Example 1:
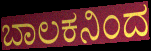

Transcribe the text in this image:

ಬಾಲಕನಿಂದ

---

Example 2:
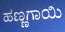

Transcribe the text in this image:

ಹಣ್ಣಗಾಯಿ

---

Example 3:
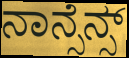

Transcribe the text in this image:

ನಾನ್ಸೆನ್ಸ್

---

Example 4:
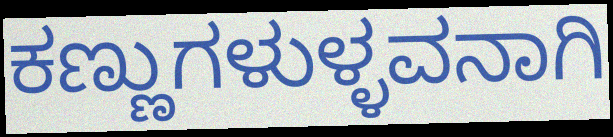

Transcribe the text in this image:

ಕಣ್ಣುಗಳುಳ್ಳವನಾಗಿ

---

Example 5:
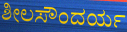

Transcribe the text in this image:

ಶೀಲಸೌಂದರ್ಯ